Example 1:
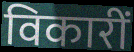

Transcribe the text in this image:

विकारीं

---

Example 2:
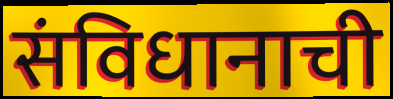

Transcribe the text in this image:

संविधानाची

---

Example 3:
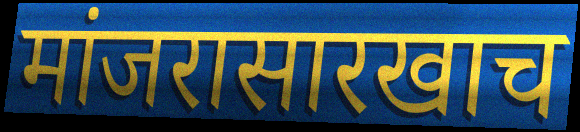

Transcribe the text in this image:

मांजरासारखाच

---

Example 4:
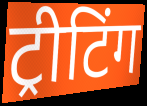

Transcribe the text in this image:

ट्रीटिंग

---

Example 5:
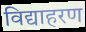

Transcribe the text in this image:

विद्याहरण